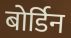
बोर्डिन